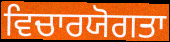
ਵਿਚਾਰਯੋਗਤਾ